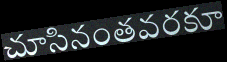
చూసినంతవరకూ